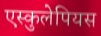
एस्कुलेपियस